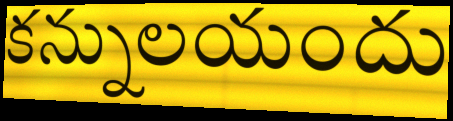
కన్నులయందు